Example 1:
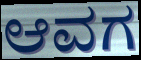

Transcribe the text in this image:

ಆವಗ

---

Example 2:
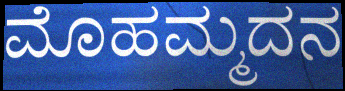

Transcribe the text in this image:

ಮೊಹಮ್ಮದನ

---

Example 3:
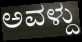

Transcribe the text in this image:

ಅವಳ್ದು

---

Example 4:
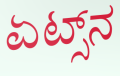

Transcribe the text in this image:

ಏಟ್ಸ್‌ನ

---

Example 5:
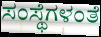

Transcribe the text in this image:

ಸಂಸ್ಥೆಗಳಂತೆ